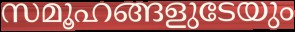
സമൂഹങ്ങളുടേയും